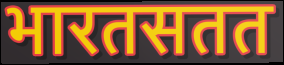
भारतसतत